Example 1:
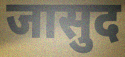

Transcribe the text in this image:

जासुद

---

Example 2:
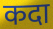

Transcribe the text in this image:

कदा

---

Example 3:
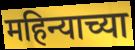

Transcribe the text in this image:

महिन्याच्या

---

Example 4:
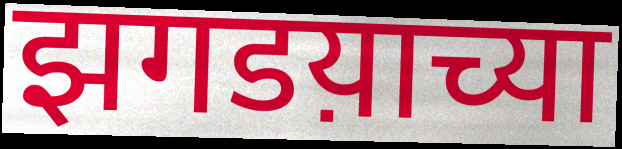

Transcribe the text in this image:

झगडय़ाच्या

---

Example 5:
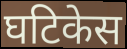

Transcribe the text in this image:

घटिकेस